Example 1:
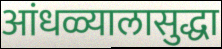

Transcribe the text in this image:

आंधळ्यालासुद्धा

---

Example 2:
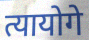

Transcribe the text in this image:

त्यायोगे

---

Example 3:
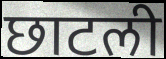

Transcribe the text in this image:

छाटली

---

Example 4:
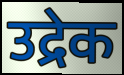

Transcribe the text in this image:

उद्रेक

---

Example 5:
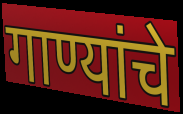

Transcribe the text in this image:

गाण्यांचे